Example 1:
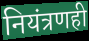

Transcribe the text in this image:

नियंत्रणही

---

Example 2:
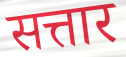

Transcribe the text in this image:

सत्तार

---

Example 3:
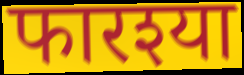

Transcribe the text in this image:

फारश्या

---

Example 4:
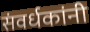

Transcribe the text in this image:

संवर्धकांनी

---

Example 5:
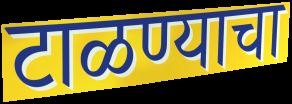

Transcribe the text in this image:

टाळण्याचा